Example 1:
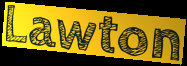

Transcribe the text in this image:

Lawton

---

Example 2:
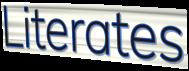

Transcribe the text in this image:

Literates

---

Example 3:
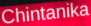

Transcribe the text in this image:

Chintanika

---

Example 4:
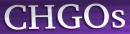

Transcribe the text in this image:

CHGOs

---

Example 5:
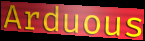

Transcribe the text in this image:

Arduous